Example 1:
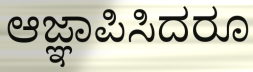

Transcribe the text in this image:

ಆಜ್ಞಾಪಿಸಿದರೂ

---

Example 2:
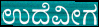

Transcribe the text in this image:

ಉದೆವೀಗ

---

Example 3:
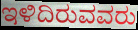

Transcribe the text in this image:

ಇಳಿದಿರುವವರು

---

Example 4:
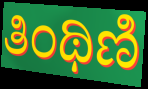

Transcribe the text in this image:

ತಿಂಥಿಣಿ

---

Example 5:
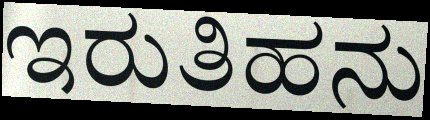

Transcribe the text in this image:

ಇರುತಿಹನು